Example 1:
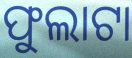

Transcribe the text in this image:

ଫୁଲାଟା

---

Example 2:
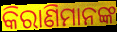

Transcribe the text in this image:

କିରାଣିମାନଙ୍କ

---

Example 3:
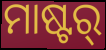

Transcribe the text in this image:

ମାଷ୍ଟର୍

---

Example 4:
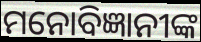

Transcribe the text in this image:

ମନୋବିଜ୍ଞାନୀଙ୍କ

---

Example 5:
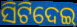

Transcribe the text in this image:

ସିଟିଦେଇ